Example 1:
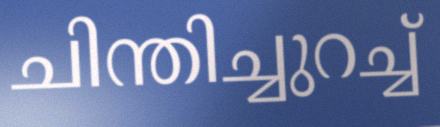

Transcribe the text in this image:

ചിന്തിച്ചുറച്ച്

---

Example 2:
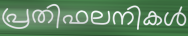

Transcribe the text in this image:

പ്രതിഫലനികൾ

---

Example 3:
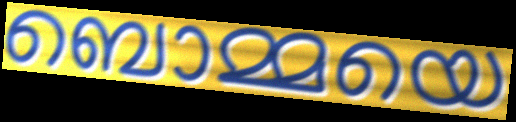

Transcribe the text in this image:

ബൊമ്മയെ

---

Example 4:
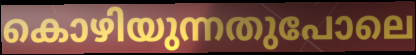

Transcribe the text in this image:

കൊഴിയുന്നതുപോലെ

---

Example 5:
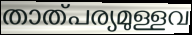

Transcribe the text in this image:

താത്പര്യമുള്ളവ